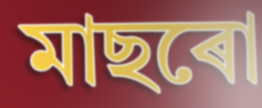
মাছৰো